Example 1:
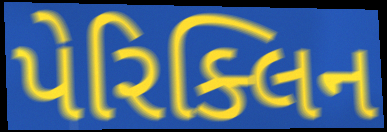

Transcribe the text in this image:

પેરિક્લિન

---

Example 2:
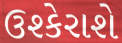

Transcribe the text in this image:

ઉશ્કેરાશે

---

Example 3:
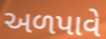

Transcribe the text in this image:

અળપાવે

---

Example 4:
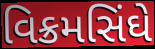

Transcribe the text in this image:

વિક્રમસિંઘે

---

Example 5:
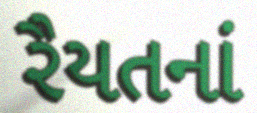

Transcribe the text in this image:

રૈયતનાં